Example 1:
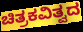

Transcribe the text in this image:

ಚಿತ್ರಕವಿತ್ವದ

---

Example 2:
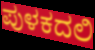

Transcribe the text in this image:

ಪುಳಕದಲಿ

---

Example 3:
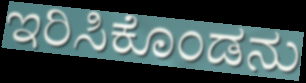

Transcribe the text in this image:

ಇರಿಸಿಕೊಂಡನು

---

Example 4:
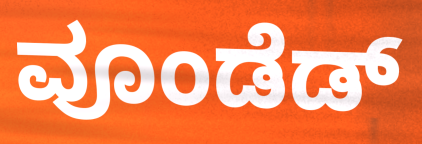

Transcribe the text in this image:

ವೂಂಡೆಡ್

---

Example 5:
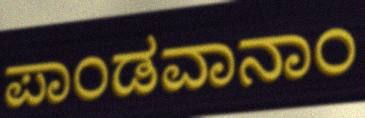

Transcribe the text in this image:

ಪಾಂಡವಾನಾಂ